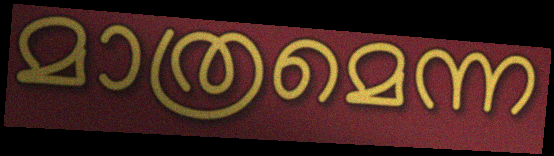
മാത്രമെന്ന